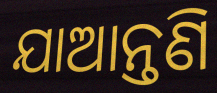
ଯାଆନ୍ତଣି